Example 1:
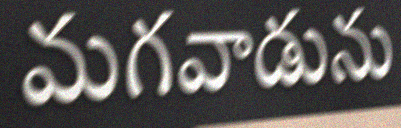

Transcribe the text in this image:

మగవాడును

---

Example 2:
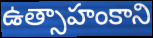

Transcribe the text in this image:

ఉత్సాహంకాని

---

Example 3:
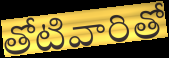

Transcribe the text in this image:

తోటివారితో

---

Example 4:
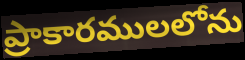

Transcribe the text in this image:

ప్రాకారములలోను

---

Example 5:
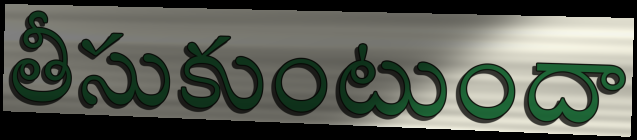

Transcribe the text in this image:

తీసుకుంటుందా